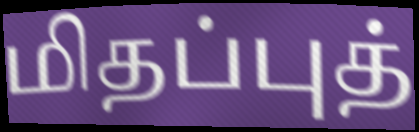
மிதப்புத்